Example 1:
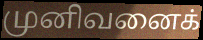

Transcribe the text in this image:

முனிவனைக்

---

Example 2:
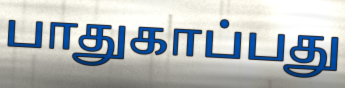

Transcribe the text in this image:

பாதுகாப்பது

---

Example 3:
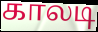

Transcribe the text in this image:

காலடி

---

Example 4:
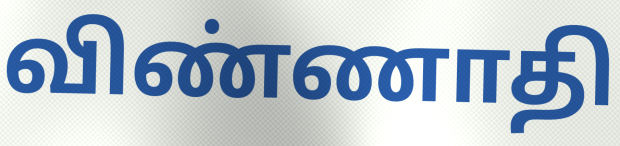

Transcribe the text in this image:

விண்ணாதி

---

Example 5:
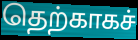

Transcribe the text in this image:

தெற்காகச்